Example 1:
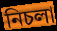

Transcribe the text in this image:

নিচলা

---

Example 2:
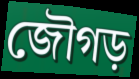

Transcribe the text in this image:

জৌগড়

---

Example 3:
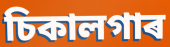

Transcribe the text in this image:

চিকালগাৰ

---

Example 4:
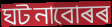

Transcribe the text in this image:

ঘটনাবোৰৰ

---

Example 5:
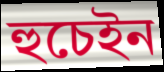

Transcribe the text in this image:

হুচেইন